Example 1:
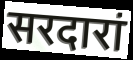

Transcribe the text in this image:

सरदारां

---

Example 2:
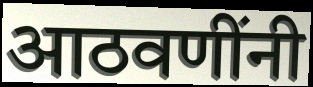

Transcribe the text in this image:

आठवणींनी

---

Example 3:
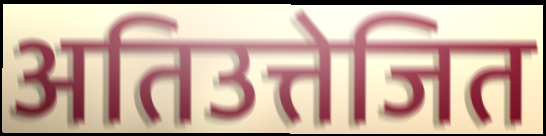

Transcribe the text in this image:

अतिउत्तेजित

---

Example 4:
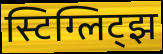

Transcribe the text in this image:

स्टिग्लिट्झ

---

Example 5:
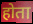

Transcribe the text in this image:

होता